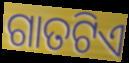
ଗାତଟିଏ